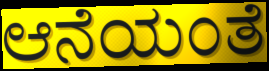
ಆನೆಯಂತೆ